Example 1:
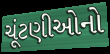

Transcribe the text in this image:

ચૂંટણીઓનો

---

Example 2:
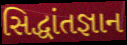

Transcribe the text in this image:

સિદ્ધાંતજ્ઞાન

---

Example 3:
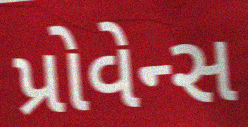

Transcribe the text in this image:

પ્રોવેન્સ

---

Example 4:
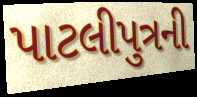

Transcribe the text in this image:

પાટલીપુત્રની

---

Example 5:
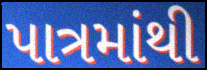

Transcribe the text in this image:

પાત્રમાંથી